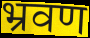
भ्रवण